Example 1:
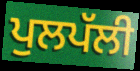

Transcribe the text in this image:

ਪੁਲਪੱਲੀ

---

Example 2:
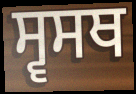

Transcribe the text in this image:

ਸ੍ਵਸਥ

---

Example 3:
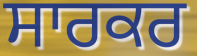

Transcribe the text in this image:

ਸਾਰਕਰ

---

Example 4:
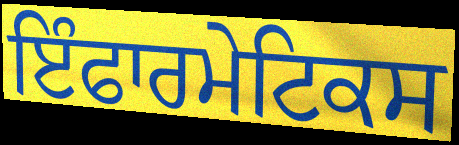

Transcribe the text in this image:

ਇੰਫਾਰਮੇਟਿਕਸ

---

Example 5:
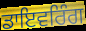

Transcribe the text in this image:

ਡਾਇਵਰਿੰਗ